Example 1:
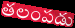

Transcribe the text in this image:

తలంపడు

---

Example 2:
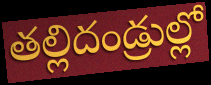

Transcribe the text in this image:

తల్లిదండ్రుల్లో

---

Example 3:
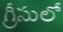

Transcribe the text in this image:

గ్రీసులో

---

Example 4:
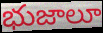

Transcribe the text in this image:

భుజాలూ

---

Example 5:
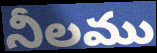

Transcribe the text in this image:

నీలము